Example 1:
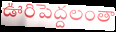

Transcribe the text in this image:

ఊరిపెద్దలంతా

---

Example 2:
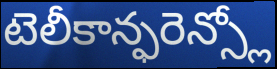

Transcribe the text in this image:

టెలీకాన్ఫరెన్స్లో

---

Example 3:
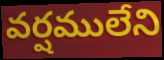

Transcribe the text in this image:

వర్షములేని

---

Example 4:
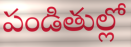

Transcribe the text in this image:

పండితుల్లో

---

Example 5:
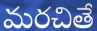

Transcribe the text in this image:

మరచితే